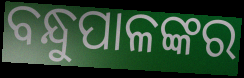
ବନ୍ଧୁପାଳଙ୍କର